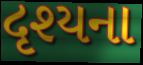
દૃશ્યના